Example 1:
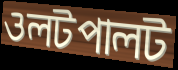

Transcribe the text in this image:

ওলটপালট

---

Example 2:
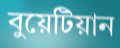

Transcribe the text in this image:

বুয়েটিয়ান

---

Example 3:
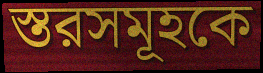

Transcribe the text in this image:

স্তরসমূহকে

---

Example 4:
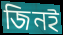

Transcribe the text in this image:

জিনই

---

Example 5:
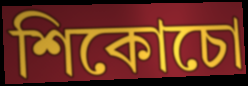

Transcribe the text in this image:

শিকোচো